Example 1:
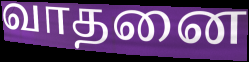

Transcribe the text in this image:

வாதனை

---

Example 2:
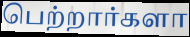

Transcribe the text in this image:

பெற்றார்களா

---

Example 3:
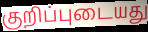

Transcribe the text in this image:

குறிப்புடையது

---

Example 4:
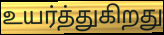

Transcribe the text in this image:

உயர்த்துகிறது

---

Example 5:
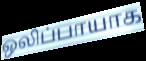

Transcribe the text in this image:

ஒலிப்பாயாக